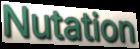
Nutation